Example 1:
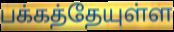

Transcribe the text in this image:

பக்கத்தேயுள்ள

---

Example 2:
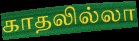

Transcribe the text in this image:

காதலில்லா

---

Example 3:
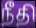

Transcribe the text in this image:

நீதி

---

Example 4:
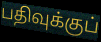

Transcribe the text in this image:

பதிவுக்குப்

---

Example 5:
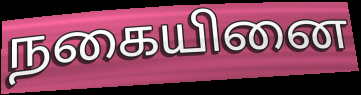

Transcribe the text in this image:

நகையினை